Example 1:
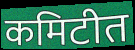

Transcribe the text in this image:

कमिटीत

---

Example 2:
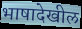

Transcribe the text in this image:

भाषादेखील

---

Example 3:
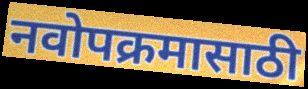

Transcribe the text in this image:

नवोपक्रमासाठी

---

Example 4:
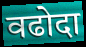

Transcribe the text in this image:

वढोदा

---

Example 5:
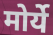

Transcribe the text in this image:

मोर्ये